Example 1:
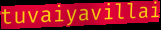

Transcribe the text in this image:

tuvaiyavillai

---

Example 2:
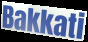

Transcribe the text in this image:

Bakkati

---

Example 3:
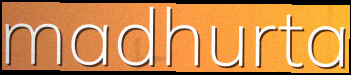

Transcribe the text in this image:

madhurta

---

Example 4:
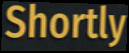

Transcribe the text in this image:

Shortly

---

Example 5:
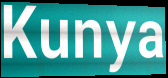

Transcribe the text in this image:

Kunya